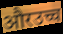
औरउच्च